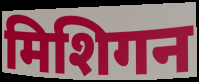
मिशिगन